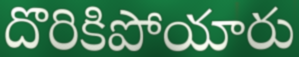
దొరికిపోయారు